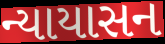
ન્યાયાસન